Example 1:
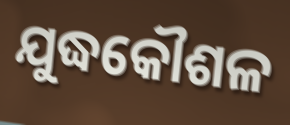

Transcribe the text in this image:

ଯୁଦ୍ଧକୌଶଳ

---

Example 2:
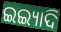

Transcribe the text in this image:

ଇଇ୍ୟାଦି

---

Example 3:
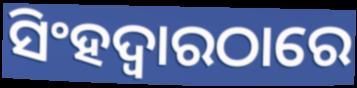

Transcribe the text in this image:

ସିଂହଦ୍ୱାରଠାରେ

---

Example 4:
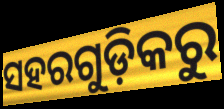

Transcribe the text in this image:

ସହରଗୁଡ଼ିକରୁ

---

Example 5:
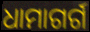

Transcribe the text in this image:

ଧାମାଗର୍ଗ